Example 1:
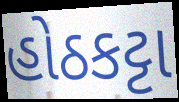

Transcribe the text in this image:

હોઠકટ્ટા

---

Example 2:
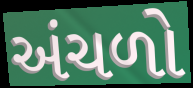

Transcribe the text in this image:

અંચળો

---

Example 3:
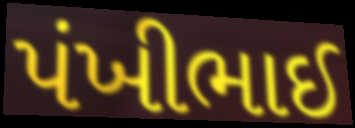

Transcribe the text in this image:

પંખીભાઈ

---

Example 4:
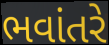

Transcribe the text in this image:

ભવાંતરે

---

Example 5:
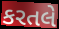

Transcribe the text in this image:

કરતલે